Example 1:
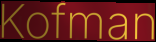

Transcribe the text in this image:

Kofman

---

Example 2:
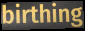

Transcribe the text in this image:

birthing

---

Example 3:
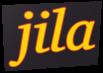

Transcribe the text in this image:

jila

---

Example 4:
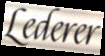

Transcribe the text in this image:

Lederer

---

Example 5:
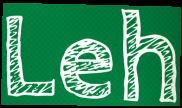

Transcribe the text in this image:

Leh